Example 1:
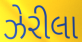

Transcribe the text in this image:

ઝેરીલા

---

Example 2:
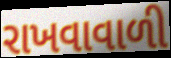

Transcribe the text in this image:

રાખવાવાળી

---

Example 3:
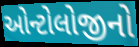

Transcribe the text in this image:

ઓન્ટોલોજીનો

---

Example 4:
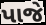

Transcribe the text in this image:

પાજે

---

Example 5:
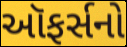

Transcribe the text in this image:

ઑફર્સનો